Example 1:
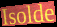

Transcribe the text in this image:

Isolde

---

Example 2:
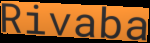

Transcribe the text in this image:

Rivaba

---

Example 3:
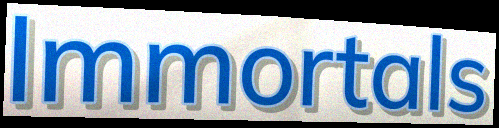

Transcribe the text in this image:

Immortals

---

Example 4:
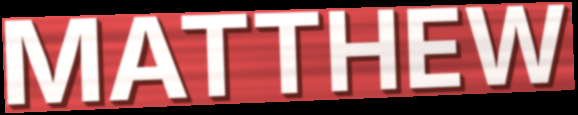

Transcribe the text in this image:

MATTHEW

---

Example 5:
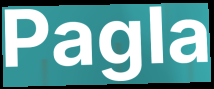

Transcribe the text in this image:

Pagla